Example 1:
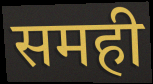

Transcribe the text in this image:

समही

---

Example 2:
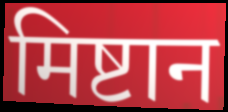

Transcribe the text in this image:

मिष्टान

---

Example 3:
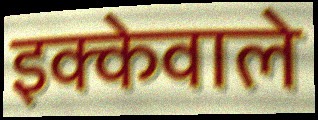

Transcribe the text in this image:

इक्केवाले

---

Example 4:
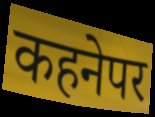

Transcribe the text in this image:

कहनेपर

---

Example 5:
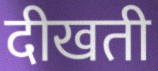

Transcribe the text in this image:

दीखती